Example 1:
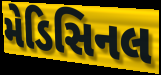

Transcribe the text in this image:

મેડિસિનલ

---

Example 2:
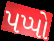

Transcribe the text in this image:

પપ્પો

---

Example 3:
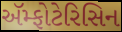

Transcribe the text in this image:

ઍમ્ફોટેરિસિન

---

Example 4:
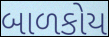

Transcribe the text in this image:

બાળકોય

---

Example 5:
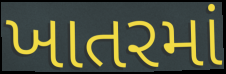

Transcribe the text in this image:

ખાતરમાં